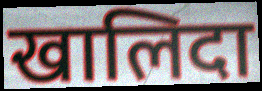
खालिदा